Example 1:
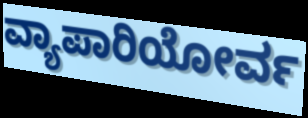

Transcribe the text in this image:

ವ್ಯಾಪಾರಿಯೋರ್ವ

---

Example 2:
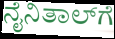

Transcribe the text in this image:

ನೈನಿತಾಲ್‌ಗೆ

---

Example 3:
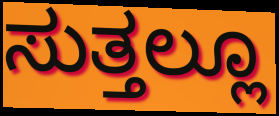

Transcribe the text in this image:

ಸುತ್ತಲ್ಲೂ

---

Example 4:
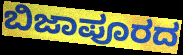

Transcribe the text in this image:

ಬಿಜಾಪೂರದ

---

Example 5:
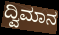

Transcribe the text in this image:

ದ್ವಿಮಾನ